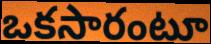
ఒకసారంటూ